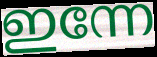
ഇന്നേ